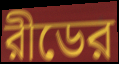
রীডের